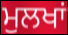
ਮੁਲਖਾਂ